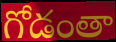
గోడంతా